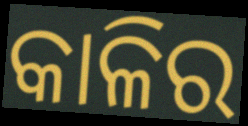
କାଳିର